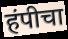
हंपीचा